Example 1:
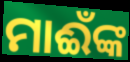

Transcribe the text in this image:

ମାଈଁଙ୍କ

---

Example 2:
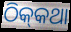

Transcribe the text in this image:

ଠିକ୍‌କଥା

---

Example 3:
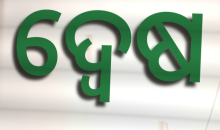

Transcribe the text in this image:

ଦ୍ବେଷ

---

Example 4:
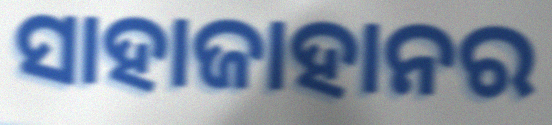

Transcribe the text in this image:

ସାହାଜାହାନର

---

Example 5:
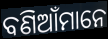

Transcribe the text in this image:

ବଣିଆଁମାନେ